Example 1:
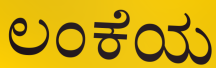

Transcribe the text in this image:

ಲಂಕೆಯ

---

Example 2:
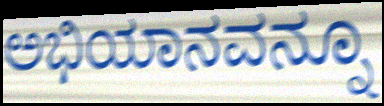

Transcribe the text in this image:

ಅಭಿಯಾನವನ್ನೂ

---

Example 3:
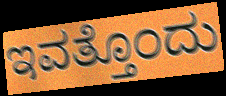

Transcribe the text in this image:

ಇವತ್ತೊಂದು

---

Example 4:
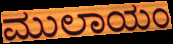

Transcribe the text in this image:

ಮುಲಾಯಂ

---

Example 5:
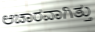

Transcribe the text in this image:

ಆಚಾರವಾಗಿತ್ತು